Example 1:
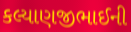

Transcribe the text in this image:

કલ્યાણજીભાઈની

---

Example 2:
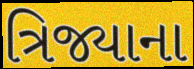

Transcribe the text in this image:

ત્રિજ્યાના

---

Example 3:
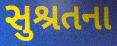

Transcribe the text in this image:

સુશ્રતના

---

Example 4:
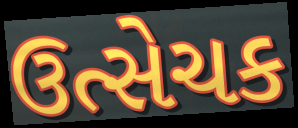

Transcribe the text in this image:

ઉત્સેચક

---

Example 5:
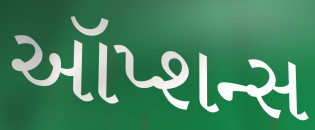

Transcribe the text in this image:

ઑપ્શન્સ